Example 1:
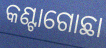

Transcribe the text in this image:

କଣ୍ଟାଗୋଛା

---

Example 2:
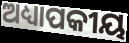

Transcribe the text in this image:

ଅଧ୍ୟାପକୀୟ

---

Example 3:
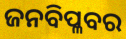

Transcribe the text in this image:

ଜନବିପ୍ଳବର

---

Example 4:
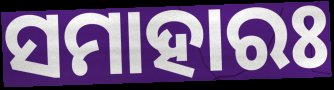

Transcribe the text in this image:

ସମାହାରଃ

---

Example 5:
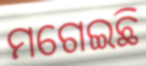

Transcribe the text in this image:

ମଗେଇଛି